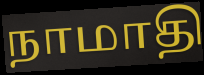
நாமாதி